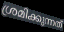
ശ്രമിക്കുന്നത്